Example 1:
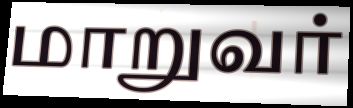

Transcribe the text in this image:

மாறுவர்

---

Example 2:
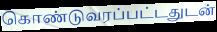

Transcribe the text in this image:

கொண்டுவரப்பட்டதுடன்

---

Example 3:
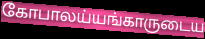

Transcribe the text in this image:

கோபாலய்யங்காருடைய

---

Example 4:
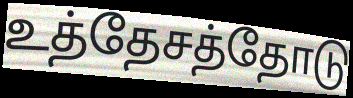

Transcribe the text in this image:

உத்தேசத்தோடு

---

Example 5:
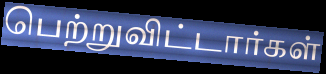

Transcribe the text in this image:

பெற்றுவிட்டார்கள்